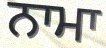
ਨਾਮਾ